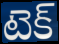
టెక్